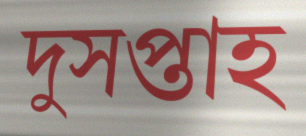
দুসপ্তাহ